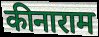
कीनाराम